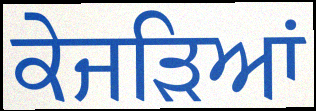
ਕੇਜੜਿਆਂ